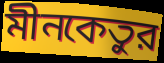
মীনকেতুর